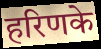
हरिणके